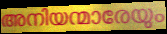
അനിയന്മാരേയും